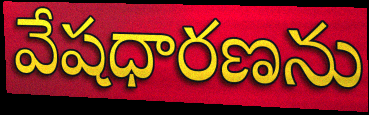
వేషధారణను